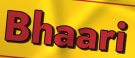
Bhaari